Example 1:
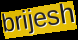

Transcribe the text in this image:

brijesh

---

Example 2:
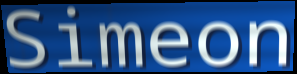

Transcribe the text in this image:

Simeon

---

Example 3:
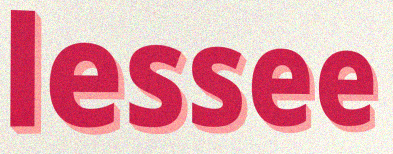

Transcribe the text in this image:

lessee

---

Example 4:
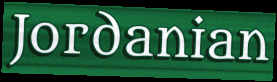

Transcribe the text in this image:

Jordanian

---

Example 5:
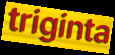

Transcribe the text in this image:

triginta